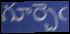
గూర్చెఁ